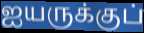
ஐயருக்குப்